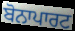
ਬੋਨਾਪਾਰਟ